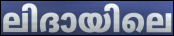
ലിദായിലെ